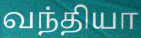
வந்தியா